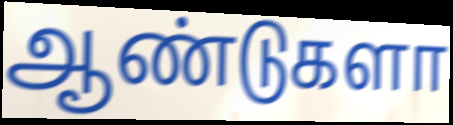
ஆண்டுகளா